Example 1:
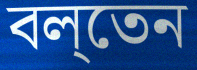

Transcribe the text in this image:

বল্‌তেন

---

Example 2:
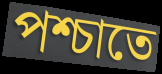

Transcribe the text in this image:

পশ্চাতে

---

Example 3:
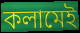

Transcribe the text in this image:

কলামেই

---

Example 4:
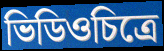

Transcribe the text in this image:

ভিডিওচিত্রে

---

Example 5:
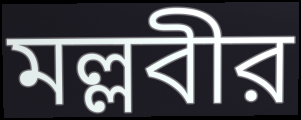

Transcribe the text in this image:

মল্লবীর